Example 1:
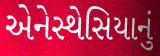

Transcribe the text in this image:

એનેસ્થેસિયાનું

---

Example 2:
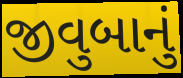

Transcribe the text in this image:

જીવુબાનું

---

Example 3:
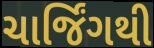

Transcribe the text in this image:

ચાર્જિંગથી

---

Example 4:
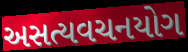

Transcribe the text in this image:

અસત્યવચનયોગ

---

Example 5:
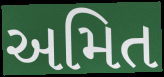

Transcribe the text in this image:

અમિત